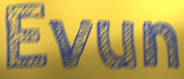
Evun